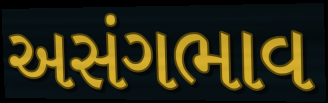
અસંગભાવ